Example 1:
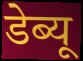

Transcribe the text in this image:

डेब्यू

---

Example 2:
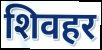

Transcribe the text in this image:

शिवहर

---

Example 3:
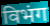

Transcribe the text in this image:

विभंग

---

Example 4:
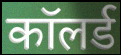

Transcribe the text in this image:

कॉलर्ड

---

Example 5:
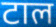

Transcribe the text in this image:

टाल